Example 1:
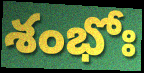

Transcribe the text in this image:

శంభోః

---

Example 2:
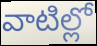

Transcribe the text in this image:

వాటిల్లో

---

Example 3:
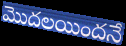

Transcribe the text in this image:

మొదలయిందనే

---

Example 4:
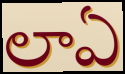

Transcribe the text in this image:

లాఏ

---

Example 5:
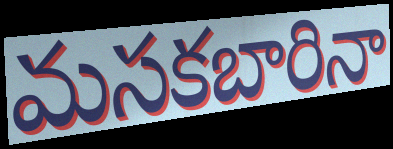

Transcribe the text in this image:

మసకబారినా